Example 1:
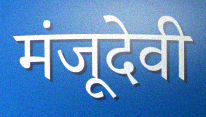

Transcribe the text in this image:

मंजूदेवी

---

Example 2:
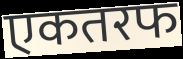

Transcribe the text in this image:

एकतरफ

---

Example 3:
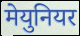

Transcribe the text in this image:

मेयुनियर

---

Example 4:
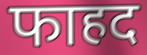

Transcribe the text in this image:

फाहद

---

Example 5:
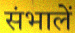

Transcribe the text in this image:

संभालें